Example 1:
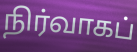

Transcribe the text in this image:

நிர்வாகப்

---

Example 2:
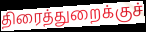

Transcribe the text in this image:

திரைத்துறைக்குச்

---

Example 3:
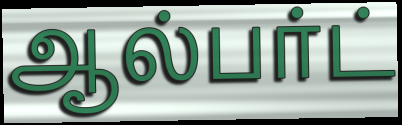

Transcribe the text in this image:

ஆல்பர்ட்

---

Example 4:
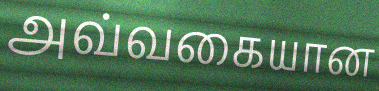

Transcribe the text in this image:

அவ்வகையான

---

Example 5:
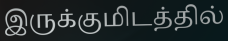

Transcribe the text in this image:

இருக்குமிடத்தில்